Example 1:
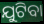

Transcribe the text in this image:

ଯୁଟିବା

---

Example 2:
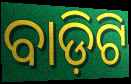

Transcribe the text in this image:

ବାଡ଼ିଟି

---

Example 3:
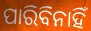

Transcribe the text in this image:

ପାରିବିନାହିଁ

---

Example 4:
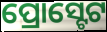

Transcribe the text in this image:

ପ୍ରୋସ୍ଟେଟ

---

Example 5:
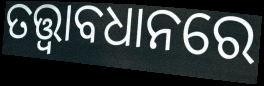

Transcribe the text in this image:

ତତ୍ତ୍ଵାବଧାନରେ